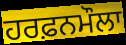
ਹਰਫ਼ਨਮੌਲਾ